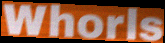
Whorls